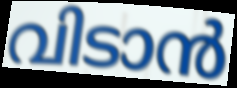
വിടാൻ